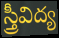
స్త్రీవిద్య